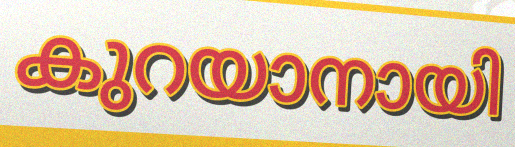
കുറയാനായി